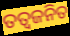
ତତ୍ଵଜନିତ